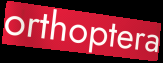
orthoptera